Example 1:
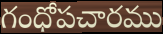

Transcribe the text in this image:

గంధోపచారము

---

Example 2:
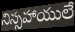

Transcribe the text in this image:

నిస్సహాయులే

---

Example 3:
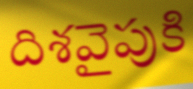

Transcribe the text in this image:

దిశవైపుకి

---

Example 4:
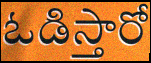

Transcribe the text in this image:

ఓడిస్తారో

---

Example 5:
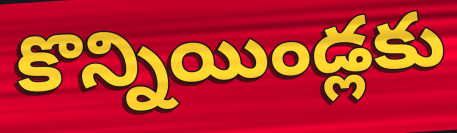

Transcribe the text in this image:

కొన్నియిండ్లకు